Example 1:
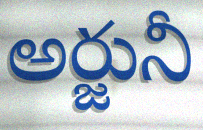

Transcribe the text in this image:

అర్జునీ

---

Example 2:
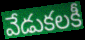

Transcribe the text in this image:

వేడుకలకీ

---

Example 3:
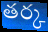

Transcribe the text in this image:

తర్క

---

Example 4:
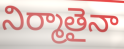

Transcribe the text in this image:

నిర్మాతైనా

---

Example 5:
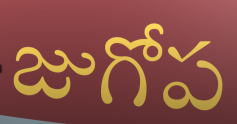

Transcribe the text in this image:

జుగోప